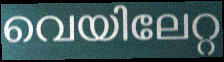
വെയിലേറ്റ